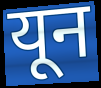
यून